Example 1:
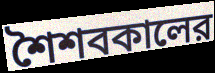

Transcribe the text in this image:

শৈশবকালের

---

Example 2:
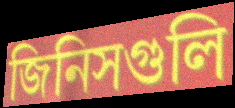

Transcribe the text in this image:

জিনিসগুলি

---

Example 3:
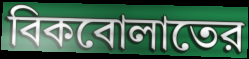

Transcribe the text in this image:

বিকবোলাতের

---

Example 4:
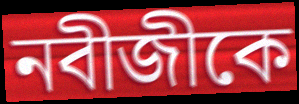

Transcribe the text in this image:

নবীজীকে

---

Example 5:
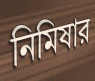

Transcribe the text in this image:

নিমিষার